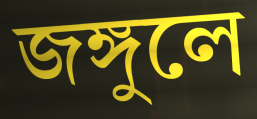
জঙ্গুলে